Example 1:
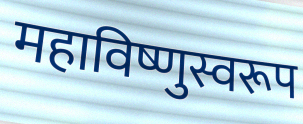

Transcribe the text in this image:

महाविष्णुस्वरूप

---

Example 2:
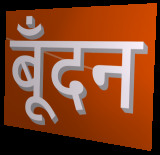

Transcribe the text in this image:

बूँदन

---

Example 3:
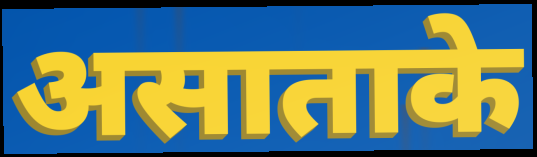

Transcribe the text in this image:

असाताके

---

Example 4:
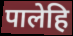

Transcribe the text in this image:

पालेहि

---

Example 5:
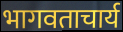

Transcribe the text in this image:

भागवताचार्य